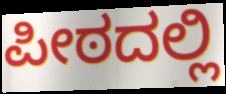
ಪೀಠದಲ್ಲಿ